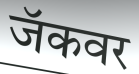
जॅकवर